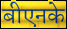
बीएनके